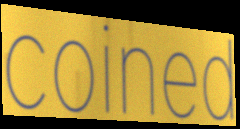
coined